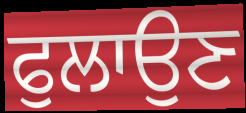
ਫੁਲਾਉਣ